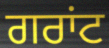
ਗਰਾਂਟ